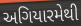
અગિયારમેથી